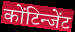
कोंटिन्जेंट